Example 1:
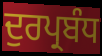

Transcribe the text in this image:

ਦੁਰਪ੍ਰਬੰਧ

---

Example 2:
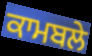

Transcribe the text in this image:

ਕਾਮਬਲੇ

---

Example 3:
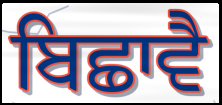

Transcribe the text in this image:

ਬਿਛਾਵੈ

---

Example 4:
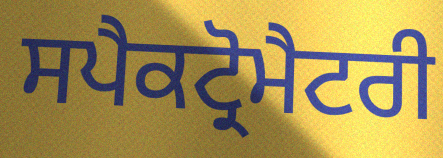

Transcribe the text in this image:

ਸਪੈਕਟ੍ਰੋਮੈਟਰੀ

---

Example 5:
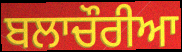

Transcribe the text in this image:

ਬਲਾਚੌਰੀਆ